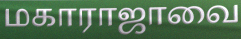
மகாராஜாவை